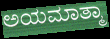
ಅಯಮಾತ್ಮಾ